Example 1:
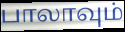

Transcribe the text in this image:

பாலாவும்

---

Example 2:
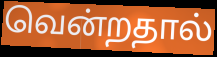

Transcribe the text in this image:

வென்றதால்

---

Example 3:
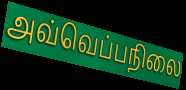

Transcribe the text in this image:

அவ்வெப்பநிலை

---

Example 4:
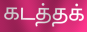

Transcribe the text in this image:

கடத்தக்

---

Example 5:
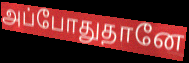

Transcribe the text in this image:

அப்போதுதானே